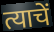
त्याचें